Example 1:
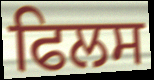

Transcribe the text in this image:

ਫਿਲਸ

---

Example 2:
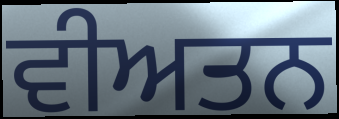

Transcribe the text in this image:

ਵੀਅਤਨ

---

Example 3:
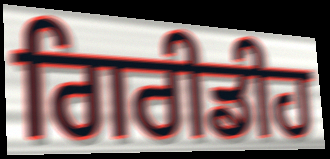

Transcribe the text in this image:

ਗਿਰੀਡੀਹ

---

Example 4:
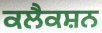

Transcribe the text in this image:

ਕਲੈਕਸ਼ਨ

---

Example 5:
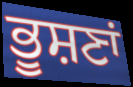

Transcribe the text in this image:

ਭੂਸ਼ਣਾਂ